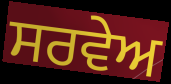
ਸਰਵੇਅ